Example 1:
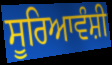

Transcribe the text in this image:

ਸੂਰਿਆਵੰਸ਼ੀ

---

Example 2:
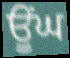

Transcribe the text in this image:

ਊਂਘ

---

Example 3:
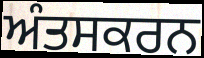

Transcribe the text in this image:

ਅੰਤਸਕਰਨ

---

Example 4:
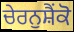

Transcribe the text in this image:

ਚੇਰਨੁਸ਼ੈਂਕੋ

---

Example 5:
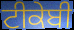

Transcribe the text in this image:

ਟੀਕੇਬੀ